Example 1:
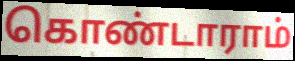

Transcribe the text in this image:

கொண்டாராம்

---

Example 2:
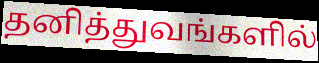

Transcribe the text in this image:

தனித்துவங்களில்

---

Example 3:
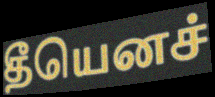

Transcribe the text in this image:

தீயெனச்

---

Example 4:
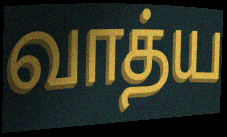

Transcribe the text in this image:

வாத்ய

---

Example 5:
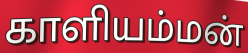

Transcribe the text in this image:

காளியம்மன்